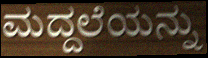
ಮದ್ದಲೆಯನ್ನು